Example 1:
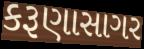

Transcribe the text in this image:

કરૂણાસાગર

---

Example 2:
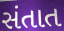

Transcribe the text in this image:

સંતાત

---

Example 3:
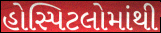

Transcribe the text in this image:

હોસ્પિટલોમાંથી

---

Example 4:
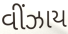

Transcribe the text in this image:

વીંઝાય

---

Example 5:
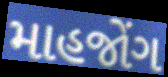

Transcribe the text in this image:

માહજોંગ